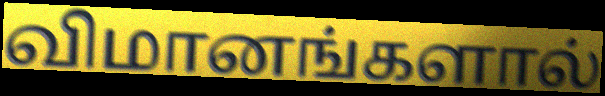
விமானங்களால்